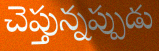
చెప్తున్నప్పుడు